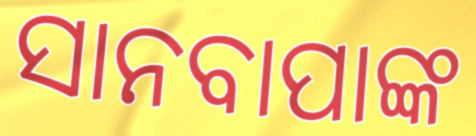
ସାନବାପାଙ୍କ